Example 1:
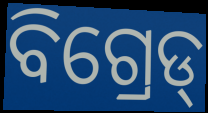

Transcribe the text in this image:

ବିଗ୍ରେଡ୍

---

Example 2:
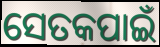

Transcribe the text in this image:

ସେତକପାଇଁ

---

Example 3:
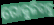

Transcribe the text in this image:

ଗୋକୁଳିବାବୁ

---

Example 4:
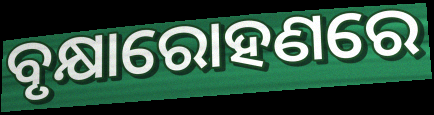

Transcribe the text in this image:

ବୃକ୍ଷାରୋହଣରେ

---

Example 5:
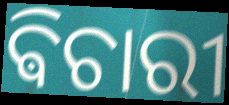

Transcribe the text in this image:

ଵିଚାରୀ